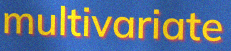
multivariate